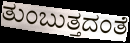
ತುಂಬುತ್ತದಂತೆ